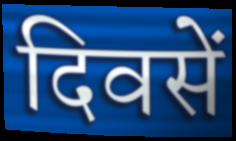
दिवसें